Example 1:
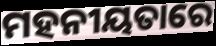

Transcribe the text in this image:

ମହନୀୟତାରେ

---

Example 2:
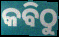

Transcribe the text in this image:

କବିଠୁ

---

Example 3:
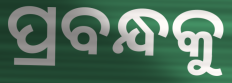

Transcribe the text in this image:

ପ୍ରବନ୍ଧକୁ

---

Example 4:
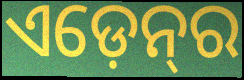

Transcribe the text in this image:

ଏଡ଼େନ୍‍ର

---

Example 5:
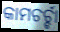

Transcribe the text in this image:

କାମଚର୍ଚ୍ଚା